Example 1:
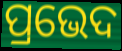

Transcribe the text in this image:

ପ୍ରଭେଦ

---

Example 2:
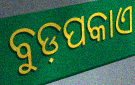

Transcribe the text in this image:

ବୁଡ଼ପକାଏ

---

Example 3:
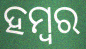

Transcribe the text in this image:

ହମ୍ବର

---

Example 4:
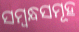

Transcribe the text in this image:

ସମ୍ୱନ୍ଧସମୂହ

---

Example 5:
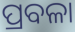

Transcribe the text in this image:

ପ୍ରବଳା